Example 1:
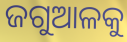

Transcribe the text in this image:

ଜଗୁଆଳକୁ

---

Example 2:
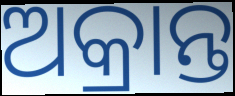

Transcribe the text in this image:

ଅକ୍ରାନ୍ତ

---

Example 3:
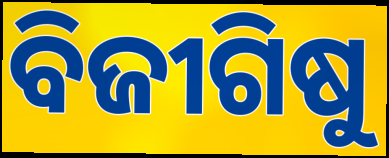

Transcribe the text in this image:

ବିଜୀଗିଷୁ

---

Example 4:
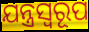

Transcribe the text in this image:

ଯନ୍ତ୍ରସ୍ୱରୂପ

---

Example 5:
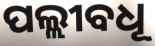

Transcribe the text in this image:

ପଲ୍ଲୀବଧୂ